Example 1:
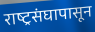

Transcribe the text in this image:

राष्ट्रसंघापासून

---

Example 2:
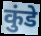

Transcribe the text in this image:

कुंडे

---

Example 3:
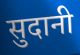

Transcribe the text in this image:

सुदानी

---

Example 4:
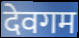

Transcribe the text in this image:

देवगम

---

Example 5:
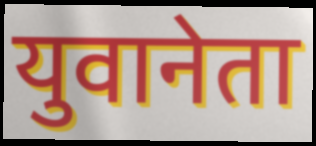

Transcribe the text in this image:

युवानेता